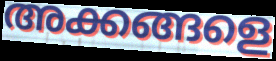
അക്കങ്ങളെ